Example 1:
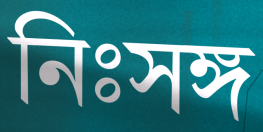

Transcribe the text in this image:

নিঃসঙ্গ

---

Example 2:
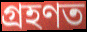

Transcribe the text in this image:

গ্ৰহণত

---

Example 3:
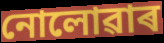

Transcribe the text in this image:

নোলোৱাৰ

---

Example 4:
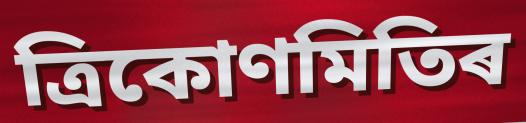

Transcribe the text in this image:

ত্ৰিকোণমিতিৰ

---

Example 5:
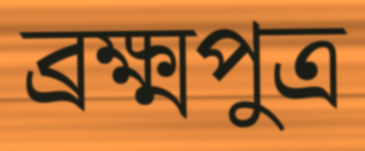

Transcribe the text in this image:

ব্ৰক্ষ্মপুত্ৰ